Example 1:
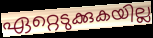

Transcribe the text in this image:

ഏറ്റെടുക്കുകയില്ല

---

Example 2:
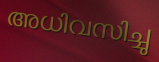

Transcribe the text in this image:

അധിവസിച്ചു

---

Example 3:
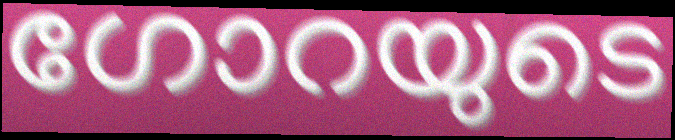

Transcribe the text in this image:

ഗോറയുടെ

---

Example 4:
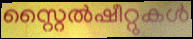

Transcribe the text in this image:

സ്റ്റൈൽഷീറ്റുകൾ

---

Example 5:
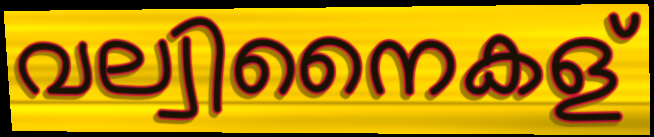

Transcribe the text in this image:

വല്വിനൈകള്